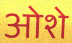
ओशे